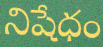
నిషేధం